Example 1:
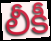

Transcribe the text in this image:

లీకీ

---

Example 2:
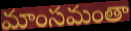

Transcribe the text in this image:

మాంసమంతా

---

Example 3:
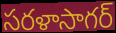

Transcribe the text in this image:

సరళాసాగర్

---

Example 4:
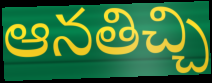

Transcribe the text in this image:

ఆనతిచ్చి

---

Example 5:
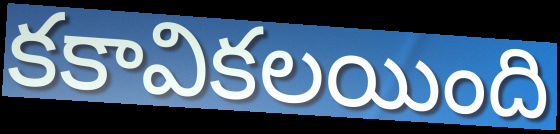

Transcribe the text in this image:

కకావికలయింది